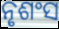
ନୃଶଂସ